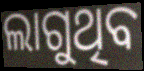
ଲାଗୁଥିବ